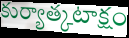
కుర్యాత్కటాక్షం